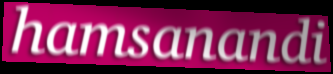
hamsanandi